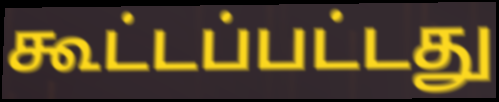
கூட்டப்பட்டது